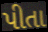
પીતા